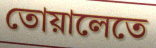
তোয়ালেতে